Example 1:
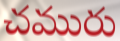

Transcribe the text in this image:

చమురు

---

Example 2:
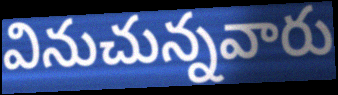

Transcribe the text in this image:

వినుచున్నవారు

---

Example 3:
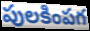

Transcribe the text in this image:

పులకింపగ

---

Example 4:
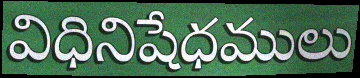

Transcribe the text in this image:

విధినిషేధములు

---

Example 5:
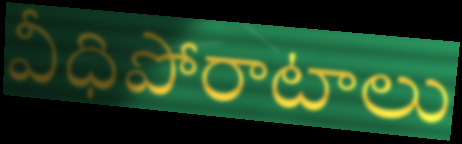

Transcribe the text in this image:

వీధిపోరాటాలు